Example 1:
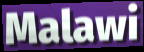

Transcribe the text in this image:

Malawi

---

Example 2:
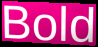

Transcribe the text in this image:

Bold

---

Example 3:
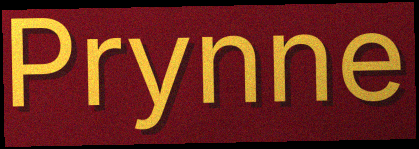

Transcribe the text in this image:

Prynne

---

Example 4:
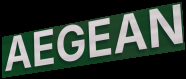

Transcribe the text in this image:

AEGEAN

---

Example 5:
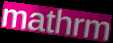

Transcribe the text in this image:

mathrm